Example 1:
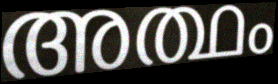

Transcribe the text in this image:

അത്ഥം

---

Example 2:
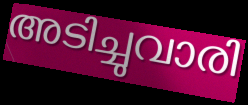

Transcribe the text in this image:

അടിച്ചുവാരി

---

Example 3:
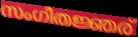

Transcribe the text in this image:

സംഗീതജ്ഞര്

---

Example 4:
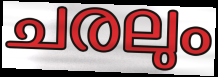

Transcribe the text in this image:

ചരലും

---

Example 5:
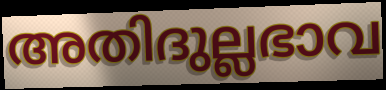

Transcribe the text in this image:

അതിദുല്ലഭാവ